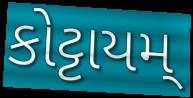
કોટ્ટાયમ્